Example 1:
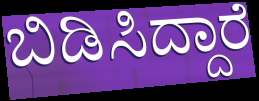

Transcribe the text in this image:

ಬಿಡಿಸಿದ್ದಾರೆ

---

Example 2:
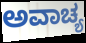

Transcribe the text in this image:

ಅವಾಚ್ಯ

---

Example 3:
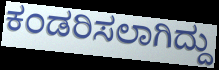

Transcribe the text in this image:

ಕಂಡರಿಸಲಾಗಿದ್ದು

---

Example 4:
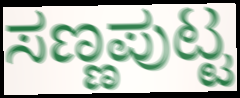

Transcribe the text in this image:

ಸಣ್ಣಪುಟ್ಟ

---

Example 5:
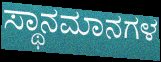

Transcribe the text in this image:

ಸ್ಥಾನಮಾನಗಳ